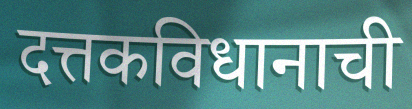
दत्तकविधानाची